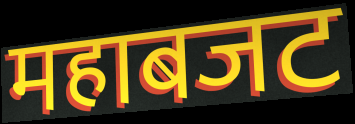
महाबजट